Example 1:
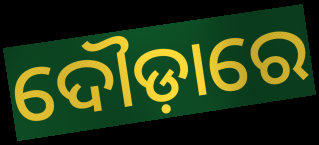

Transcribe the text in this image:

ଦୌଡ଼ାରେ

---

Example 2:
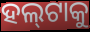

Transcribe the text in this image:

ହଲ୍‌ଟାକୁ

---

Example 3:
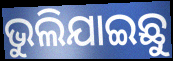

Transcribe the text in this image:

ଭୁଲିଯାଇଛୁ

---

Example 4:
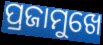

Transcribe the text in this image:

ପ୍ରଜାମୁଖେ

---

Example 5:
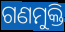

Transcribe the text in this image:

ଗଣମୁକ୍ତି